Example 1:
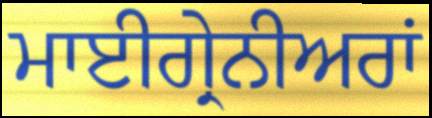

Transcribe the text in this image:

ਮਾਈਗ੍ਰੇਨੀਅਰਾਂ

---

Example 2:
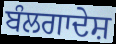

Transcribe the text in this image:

ਬੰਲਗਾਦੇਸ਼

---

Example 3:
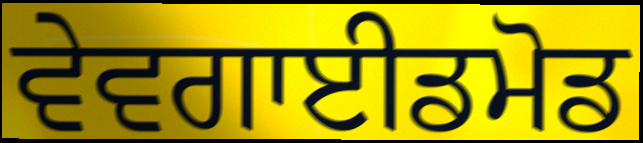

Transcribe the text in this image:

ਵੇਵਗਾਈਡਮੋਡ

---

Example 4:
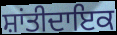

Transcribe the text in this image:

ਸ਼ਾਂਤੀਦਾਇਕ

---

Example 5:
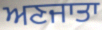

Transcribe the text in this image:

ਅਣਜਾਤਾ